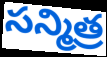
సన్మిత్ర